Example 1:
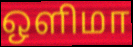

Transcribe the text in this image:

ஒளிமா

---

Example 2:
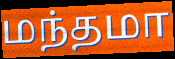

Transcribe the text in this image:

மந்தமா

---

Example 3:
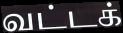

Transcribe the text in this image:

வட்டக்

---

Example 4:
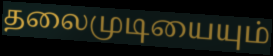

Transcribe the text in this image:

தலைமுடியையும்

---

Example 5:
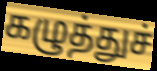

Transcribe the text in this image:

கழுத்துச்